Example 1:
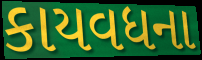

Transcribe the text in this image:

કાયવધના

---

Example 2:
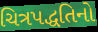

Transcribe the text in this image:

ચિત્રપદ્ધતિનો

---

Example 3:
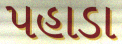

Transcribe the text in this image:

પહાડા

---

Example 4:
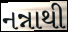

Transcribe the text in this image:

નન્નાથી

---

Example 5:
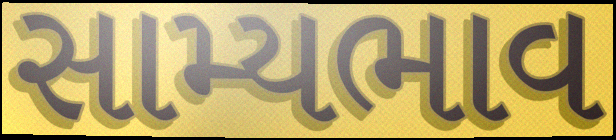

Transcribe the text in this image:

સામ્યભાવ